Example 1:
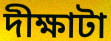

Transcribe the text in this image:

দীক্ষাটা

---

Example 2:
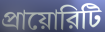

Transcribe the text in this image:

প্রায়োরিটি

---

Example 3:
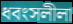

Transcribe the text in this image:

ধবংসলীলা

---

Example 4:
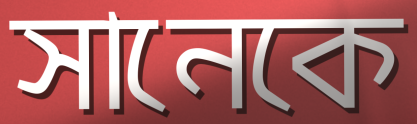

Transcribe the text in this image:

সানেকে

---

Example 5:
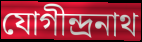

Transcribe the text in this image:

যোগীন্দ্রনাথ